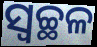
ସ୍ୱଚ୍ଛଳ